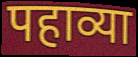
पहाव्या